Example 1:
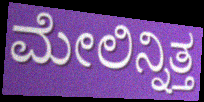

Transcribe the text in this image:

ಮೇಲಿನ್ನಿತ್ತ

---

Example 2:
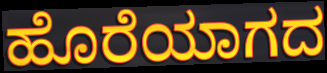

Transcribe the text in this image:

ಹೊರೆಯಾಗದ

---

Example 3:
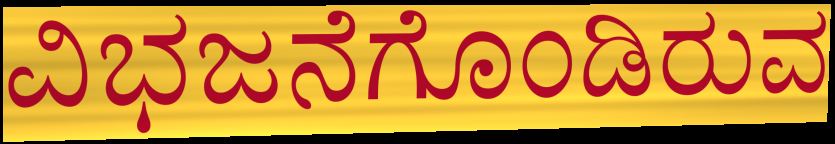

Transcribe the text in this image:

ವಿಭಜನೆಗೊಂಡಿರುವ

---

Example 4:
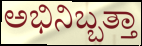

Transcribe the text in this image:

ಅಭಿನಿಬ್ಬತ್ತಾ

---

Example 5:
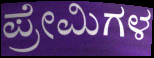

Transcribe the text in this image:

ಪ್ರೇಮಿಗಳ